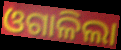
ଓଗାଳିଲା